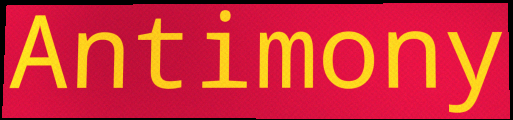
Antimony